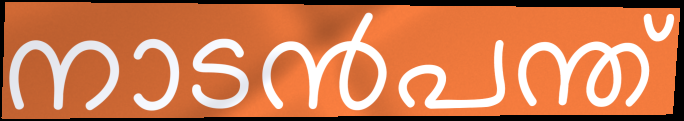
നാടൻപന്ത്